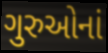
ગુરુઓનાં